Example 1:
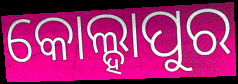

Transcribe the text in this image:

କୋଲ୍ହାପୁର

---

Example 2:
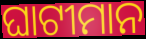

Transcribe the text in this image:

ଘାଟୀମାନ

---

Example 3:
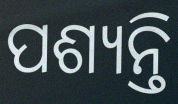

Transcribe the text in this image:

ପଶ୍ୟନ୍ତି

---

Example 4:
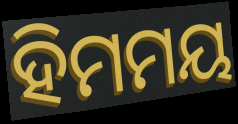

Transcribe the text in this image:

ହିମମୟ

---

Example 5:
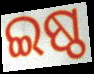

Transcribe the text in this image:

ଇଷ୍ଠ